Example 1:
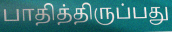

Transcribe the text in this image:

பாதித்திருப்பது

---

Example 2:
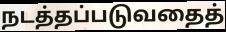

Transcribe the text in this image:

நடத்தப்படுவதைத்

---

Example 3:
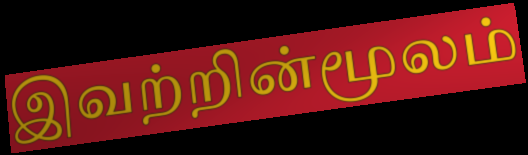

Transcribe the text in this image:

இவற்றின்மூலம்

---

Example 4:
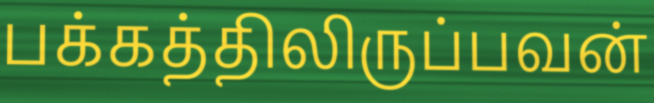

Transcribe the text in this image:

பக்கத்திலிருப்பவன்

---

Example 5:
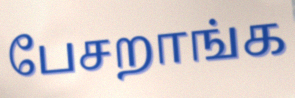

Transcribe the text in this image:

பேசறாங்க